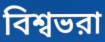
বিশ্বভরা